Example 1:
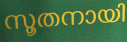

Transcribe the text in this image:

സൂതനായി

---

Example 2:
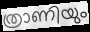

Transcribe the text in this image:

ത്രാണിയും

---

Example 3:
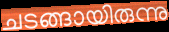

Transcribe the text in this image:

ചടങ്ങായിരുന്നു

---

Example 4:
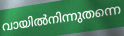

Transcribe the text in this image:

വായിൽനിന്നുതന്നെ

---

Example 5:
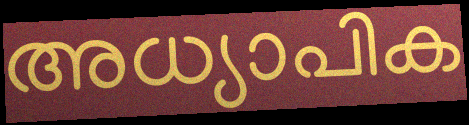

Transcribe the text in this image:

അധ്യാപിക